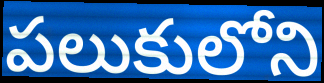
పలుకులోని